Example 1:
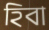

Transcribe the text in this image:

হিবা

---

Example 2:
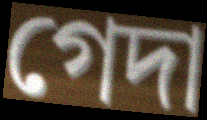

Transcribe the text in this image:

গেদা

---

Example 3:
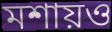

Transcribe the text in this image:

মশায়ও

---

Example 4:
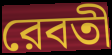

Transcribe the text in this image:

রেবতী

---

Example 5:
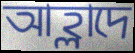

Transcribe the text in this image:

আহ্লাদে